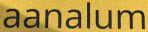
aanalum